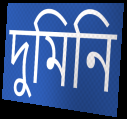
দুমিনি